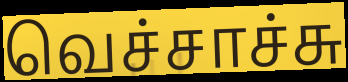
வெச்சாச்சு